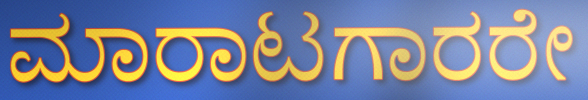
ಮಾರಾಟಗಾರರೇ